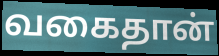
வகைதான்